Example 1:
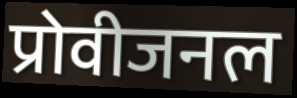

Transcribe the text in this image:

प्रोवीजनल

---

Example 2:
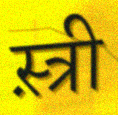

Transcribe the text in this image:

स़्त्री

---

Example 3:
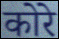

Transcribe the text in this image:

कोरे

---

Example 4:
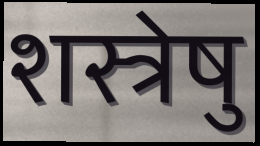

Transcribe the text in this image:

शस्त्रेषु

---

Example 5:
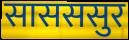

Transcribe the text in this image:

सासससुर